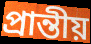
প্ৰান্তীয়